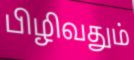
பிழிவதும்